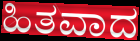
ಹಿತವಾದ